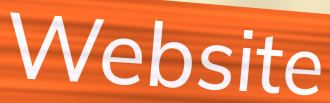
Website